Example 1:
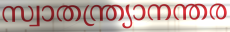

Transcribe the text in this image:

സ്വാതന്ത്ര്യാനന്തര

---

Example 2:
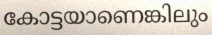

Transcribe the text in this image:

കോട്ടയാണെങ്കിലും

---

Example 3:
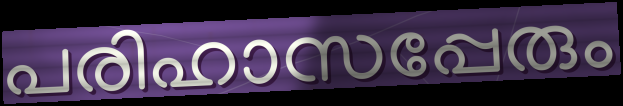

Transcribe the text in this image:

പരിഹാസപ്പേരും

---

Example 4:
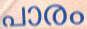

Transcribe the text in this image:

പാരം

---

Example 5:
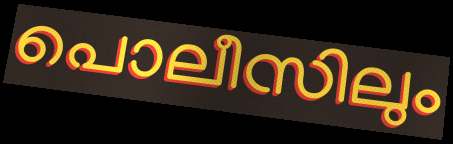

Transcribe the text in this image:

പൊലീസിലും